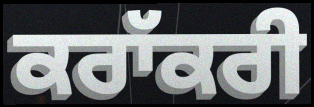
ਕਰਾੱਕਰੀ